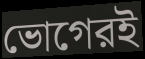
ভোগেরই